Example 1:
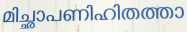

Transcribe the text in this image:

മിച്ഛാപണിഹിതത്താ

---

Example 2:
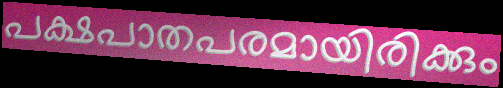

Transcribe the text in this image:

പക്ഷപാതപരമായിരിക്കും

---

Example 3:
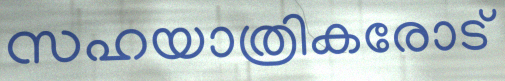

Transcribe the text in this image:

സഹയാത്രികരോട്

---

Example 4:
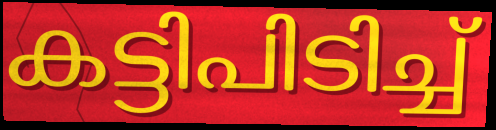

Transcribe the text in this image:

കട്ടിപിടിച്ച്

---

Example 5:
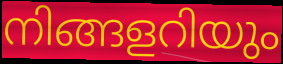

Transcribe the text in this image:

നിങ്ങളറിയും